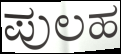
ಪುಲಹ